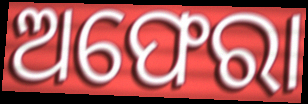
ଅଫେରା